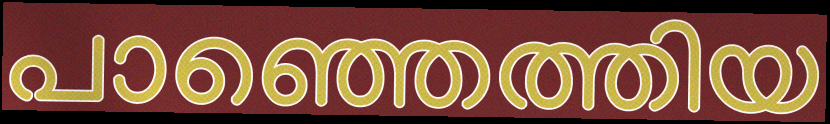
പാഞ്ഞെത്തിയ